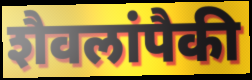
शैवलांपैकी